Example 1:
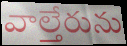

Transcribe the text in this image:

వాల్తేరును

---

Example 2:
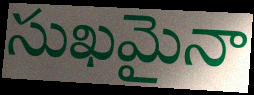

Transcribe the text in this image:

సుఖమైనా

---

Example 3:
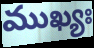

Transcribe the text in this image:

ముఖ్యః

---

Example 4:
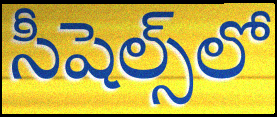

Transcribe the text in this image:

సీషెల్స్‌లో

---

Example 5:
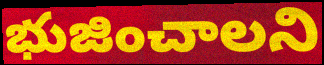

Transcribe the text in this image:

భుజించాలని